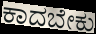
ಕಾದಬೇಕು